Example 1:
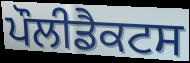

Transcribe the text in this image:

ਪੌਲੀਡੈਕਟਸ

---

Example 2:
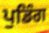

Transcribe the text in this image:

ਪੁਡਿੰਗ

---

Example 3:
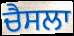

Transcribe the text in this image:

ਚੈਸਲਾ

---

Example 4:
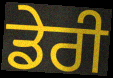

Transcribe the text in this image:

ਡੇਰੀ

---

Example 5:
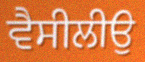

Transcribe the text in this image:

ਵੈਸੀਲੀਉ